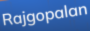
Rajgopalan